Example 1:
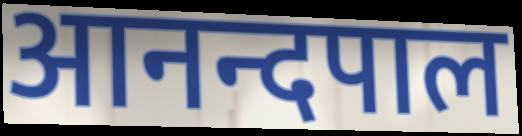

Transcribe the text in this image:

आनन्दपाल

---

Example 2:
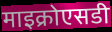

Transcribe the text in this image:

माइक्रोएसडी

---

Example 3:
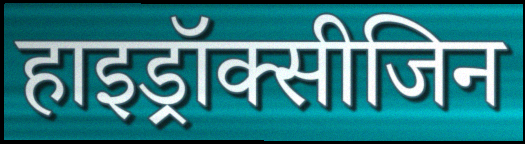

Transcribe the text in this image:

हाइड्रॉक्सीजिन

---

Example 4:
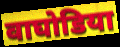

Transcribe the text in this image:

वाघोडिया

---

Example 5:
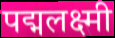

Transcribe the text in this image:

पद्मलक्ष्मी